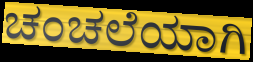
ಚಂಚಲೆಯಾಗಿ